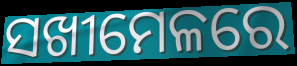
ସଖୀମେଳରେ